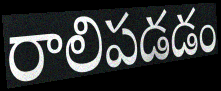
రాలిపడడం